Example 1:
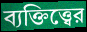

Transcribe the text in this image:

ব্যক্তিত্ত্বের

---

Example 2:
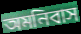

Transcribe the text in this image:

অমনিবাস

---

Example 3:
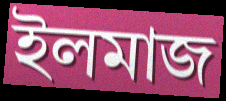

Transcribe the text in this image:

ইলমাজ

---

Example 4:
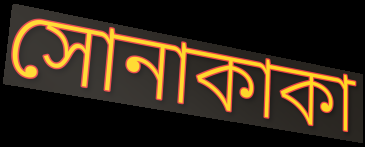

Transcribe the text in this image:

সোনাকাকা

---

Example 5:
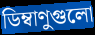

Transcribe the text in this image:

ডিম্বাণুগুলো